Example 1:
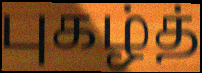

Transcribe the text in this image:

புகழ்த்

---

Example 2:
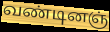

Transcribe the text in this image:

வண்டினஞ்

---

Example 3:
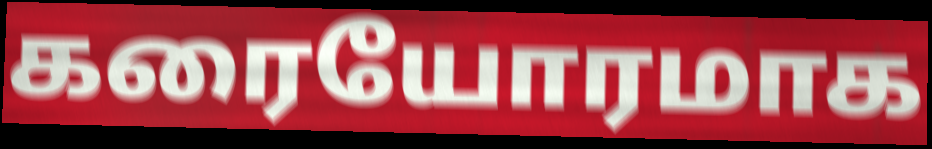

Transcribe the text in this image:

கரையோரமாக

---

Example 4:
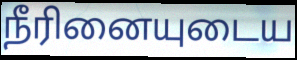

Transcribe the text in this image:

நீரினையுடைய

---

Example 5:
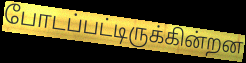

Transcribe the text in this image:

போடப்பட்டிருக்கின்றன